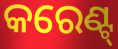
କରେଣ୍ଟ୍